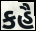
કહૈ